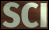
SCI